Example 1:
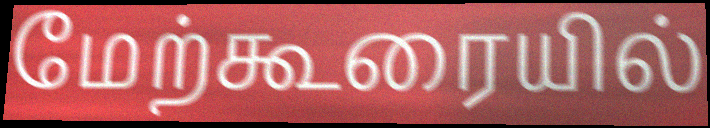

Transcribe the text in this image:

மேற்கூரையில்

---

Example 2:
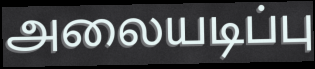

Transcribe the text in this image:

அலையடிப்பு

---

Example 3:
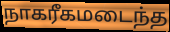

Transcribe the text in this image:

நாகரீகமடைந்த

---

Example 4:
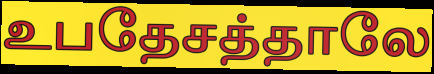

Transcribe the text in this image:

உபதேசத்தாலே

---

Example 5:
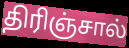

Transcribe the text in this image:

திரிஞ்சால்